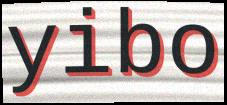
yibo